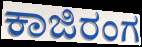
ಕಾಜಿರಂಗ